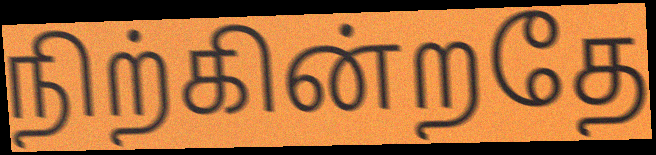
நிற்கின்றதே